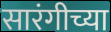
सारंगीच्या